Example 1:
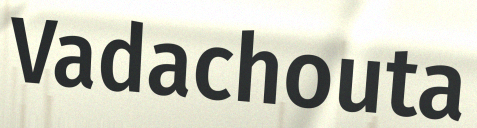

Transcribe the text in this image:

Vadachouta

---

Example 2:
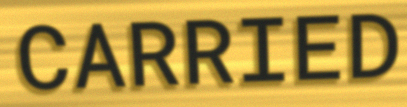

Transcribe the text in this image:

CARRIED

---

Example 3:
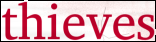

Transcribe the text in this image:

thieves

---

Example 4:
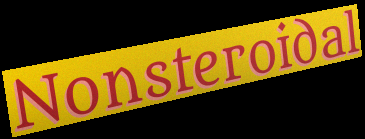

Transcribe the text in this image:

Nonsteroidal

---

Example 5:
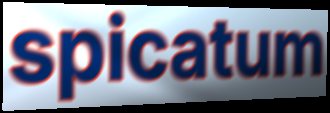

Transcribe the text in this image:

spicatum